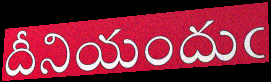
దీనియందుఁ